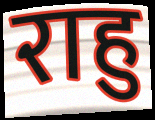
राहु